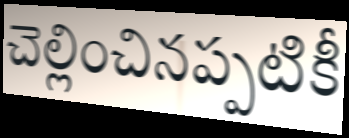
చెల్లించినప్పటికీ